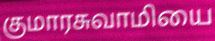
குமாரசுவாமியை